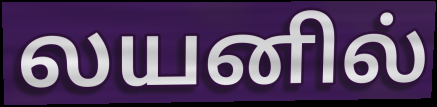
லயனில்